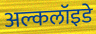
अल्कलॉइडे